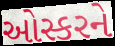
ઓસ્કરને